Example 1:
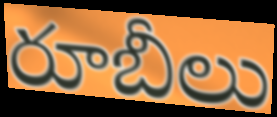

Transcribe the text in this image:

రూబీలు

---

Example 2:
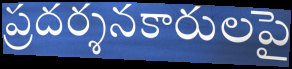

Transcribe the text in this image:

ప్రదర్శనకారులపై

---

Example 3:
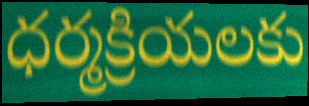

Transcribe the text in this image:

ధర్మక్రియలకు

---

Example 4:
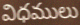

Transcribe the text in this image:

విధములు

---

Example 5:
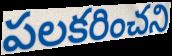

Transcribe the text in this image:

పలకరించని